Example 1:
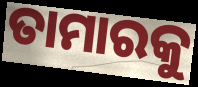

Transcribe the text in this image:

ତାମାରକୁ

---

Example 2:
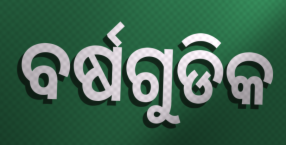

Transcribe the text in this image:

ବର୍ଷଗୁଡିକ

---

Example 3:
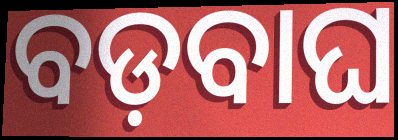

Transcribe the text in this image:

ବଡ଼ବାଘ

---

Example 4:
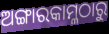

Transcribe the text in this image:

ଅଙ୍ଗାରକାମ୍ଳଠାରୁ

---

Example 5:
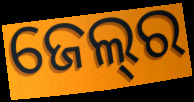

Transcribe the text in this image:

ଜେଲ୍‍ର